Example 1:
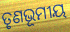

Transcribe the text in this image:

ତୃଣଭୂମୀୟ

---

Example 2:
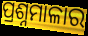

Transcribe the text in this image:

ପ୍ରଶ୍ନମାଳାର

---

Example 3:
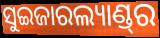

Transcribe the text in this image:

ସୁଇଜାରଲ୍ୟାଣ୍ଡ୍‌ର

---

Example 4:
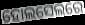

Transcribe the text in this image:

ହୋଲସେଲରେ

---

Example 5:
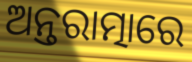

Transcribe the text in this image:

ଅନ୍ତରାତ୍ମାରେ